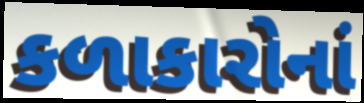
કળાકારોનાં